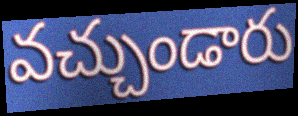
వచ్చుండారు